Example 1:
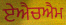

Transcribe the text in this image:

ਏਐਚਐਮ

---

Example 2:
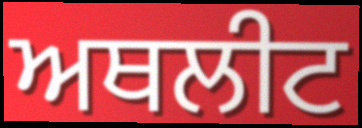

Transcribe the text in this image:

ਅਥਲੀਟ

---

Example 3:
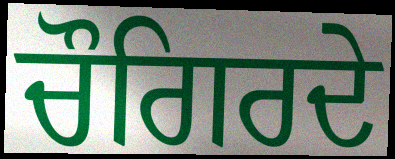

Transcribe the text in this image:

ਚੌਗਿਰਦੇ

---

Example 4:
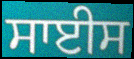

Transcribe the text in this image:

ਸਾਈਸ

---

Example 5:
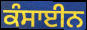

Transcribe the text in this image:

ਕੰਸਾਈਨ